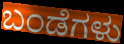
ಬಂಡೆಗಳು